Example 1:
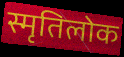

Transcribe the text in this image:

स्मृतिलोक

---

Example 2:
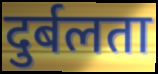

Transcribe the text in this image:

दुर्बलता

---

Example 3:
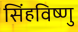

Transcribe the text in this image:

सिंहविष्णु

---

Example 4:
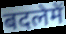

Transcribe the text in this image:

बदलेमें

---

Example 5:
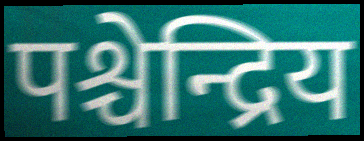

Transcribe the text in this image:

पश्चेन्द्रिय